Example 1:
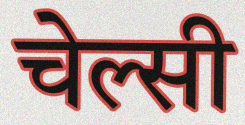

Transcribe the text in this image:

चेल्सी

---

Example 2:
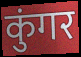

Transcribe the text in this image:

कुंगर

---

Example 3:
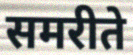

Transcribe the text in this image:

समरीते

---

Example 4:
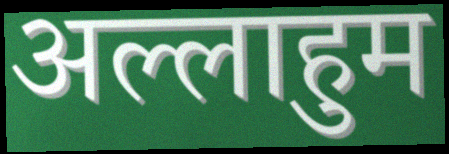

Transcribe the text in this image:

अल्लाहुम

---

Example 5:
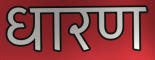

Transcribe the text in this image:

धारण